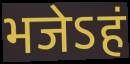
भजेऽहं